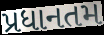
પ્રધાનતમ